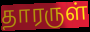
தாரருள்